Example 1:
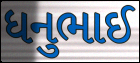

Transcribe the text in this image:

ધનુભાઈ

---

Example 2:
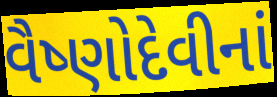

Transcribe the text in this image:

વૈષ્ણોદેવીનાં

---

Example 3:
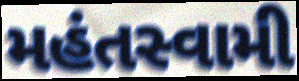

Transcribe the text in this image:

મહંતસ્વામી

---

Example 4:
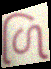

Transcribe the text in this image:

ળિ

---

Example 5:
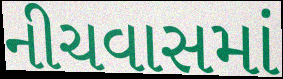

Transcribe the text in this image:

નીચવાસમાં